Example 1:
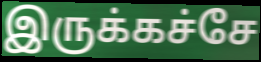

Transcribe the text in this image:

இருக்கச்சே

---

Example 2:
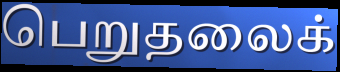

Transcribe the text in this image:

பெறுதலைக்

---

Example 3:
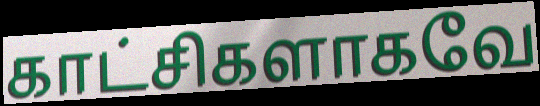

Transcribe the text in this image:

காட்சிகளாகவே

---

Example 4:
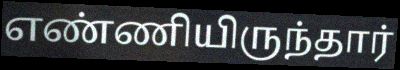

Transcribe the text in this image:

எண்ணியிருந்தார்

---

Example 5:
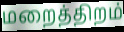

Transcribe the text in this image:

மறைத்திறம்